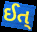
ઈત્